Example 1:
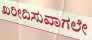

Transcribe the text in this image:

ಖರೀದಿಸುವಾಗಲೇ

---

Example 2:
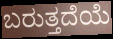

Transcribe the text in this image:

ಬರುತ್ತದೆಯೆ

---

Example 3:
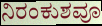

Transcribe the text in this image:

ನಿರಂಕುಶವೂ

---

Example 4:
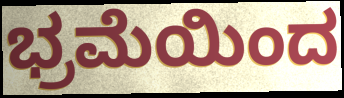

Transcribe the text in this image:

ಭ್ರಮೆಯಿಂದ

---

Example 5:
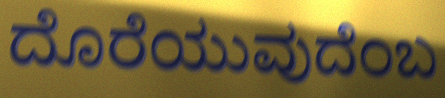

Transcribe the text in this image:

ದೊರೆಯುವುದೆಂಬ